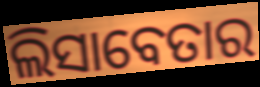
ଲିସାବେତାର